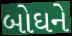
બોઘને